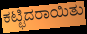
ಕಟ್ಟಿದರಾಯಿತು